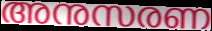
അനുസരണ